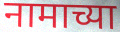
नामाच्या